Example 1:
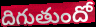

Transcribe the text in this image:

దిగుతుందో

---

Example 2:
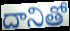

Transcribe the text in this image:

దానితో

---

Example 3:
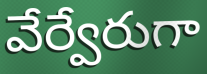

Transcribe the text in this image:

వేర్వేరుగా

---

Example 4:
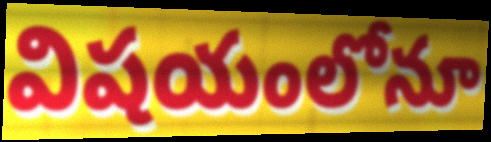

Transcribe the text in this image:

విషయంలోనూ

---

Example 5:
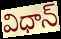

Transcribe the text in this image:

విధాన్